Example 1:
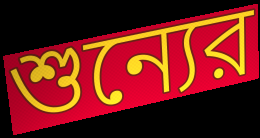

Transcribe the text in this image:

শুন্যের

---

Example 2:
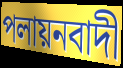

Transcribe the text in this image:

পলায়নবাদী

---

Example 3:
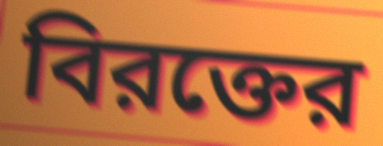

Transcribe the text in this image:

বিরক্তের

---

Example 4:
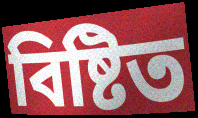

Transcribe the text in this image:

বিষ্টিত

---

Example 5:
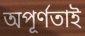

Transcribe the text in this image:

অপূর্ণতাই